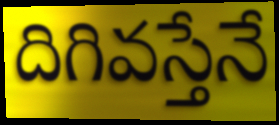
దిగివస్తేనే